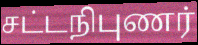
சட்டநிபுணர்